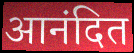
आनंदित